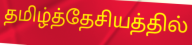
தமிழ்த்தேசியத்தில்